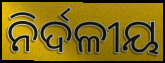
ନିର୍ଦଳୀୟ